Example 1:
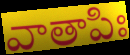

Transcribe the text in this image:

వాతాపిః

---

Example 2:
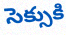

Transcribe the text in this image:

సెక్సుకి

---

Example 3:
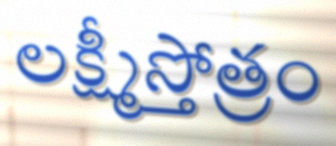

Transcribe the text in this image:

లక్ష్మీస్తోత్రం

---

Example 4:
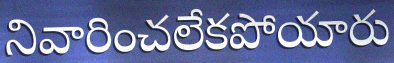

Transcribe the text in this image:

నివారించలేకపోయారు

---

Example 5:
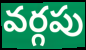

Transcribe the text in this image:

వర్గపు